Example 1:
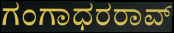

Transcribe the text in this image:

ಗಂಗಾಧರರಾವ್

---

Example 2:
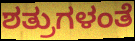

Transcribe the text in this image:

ಶತ್ರುಗಳಂತೆ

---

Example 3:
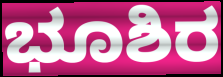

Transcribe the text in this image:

ಭೂಶಿರ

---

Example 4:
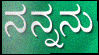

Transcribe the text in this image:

ನನ್ನನು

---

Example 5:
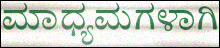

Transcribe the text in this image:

ಮಾಧ್ಯಮಗಳಾಗಿ